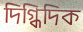
দিগ্ধিদিক